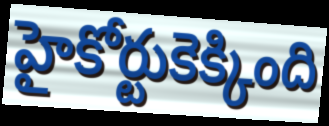
హైకోర్టుకెక్కింది